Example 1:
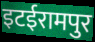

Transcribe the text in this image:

इटईरामपुर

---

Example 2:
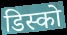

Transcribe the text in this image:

डिस्को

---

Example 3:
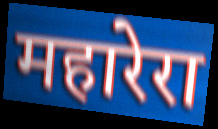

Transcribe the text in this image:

महारेरा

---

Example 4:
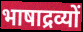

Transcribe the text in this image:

भाषाद्रव्यों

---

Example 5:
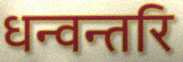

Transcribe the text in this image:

धन्वन्तरि